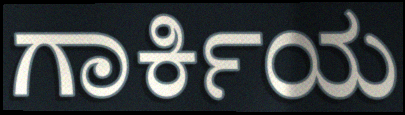
ಗಾರ್ಕಿಯ